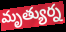
మృత్యుర్న